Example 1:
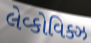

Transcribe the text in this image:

લેવ્કોવિક્ઝ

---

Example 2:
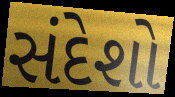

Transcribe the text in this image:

સંદેશો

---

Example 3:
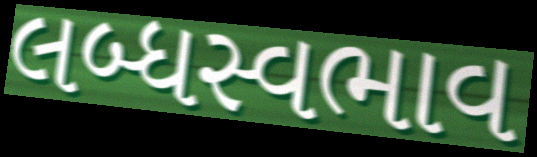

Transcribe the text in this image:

લબ્ધસ્વભાવ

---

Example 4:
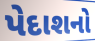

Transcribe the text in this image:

પેદાશનો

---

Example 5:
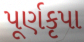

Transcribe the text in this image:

પૂર્ણકૃપા